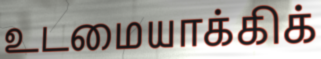
உடமையாக்கிக்